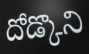
దోడ్కొని